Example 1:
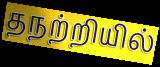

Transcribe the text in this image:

தநற்றியில்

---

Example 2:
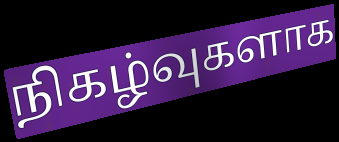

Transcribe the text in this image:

நிகழ்வுகளாக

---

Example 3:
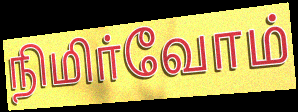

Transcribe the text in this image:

நிமிர்வோம்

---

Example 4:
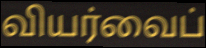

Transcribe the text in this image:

வியர்வைப்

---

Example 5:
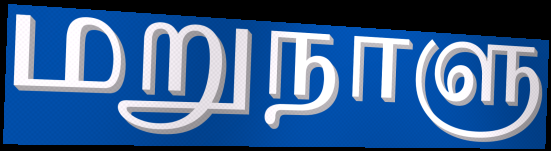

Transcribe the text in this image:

மறுநாளு